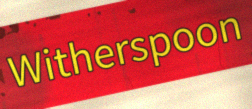
Witherspoon